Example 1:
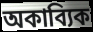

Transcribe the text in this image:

অকাব্যিক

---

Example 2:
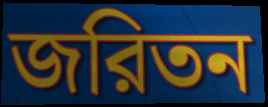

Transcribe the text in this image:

জরিতন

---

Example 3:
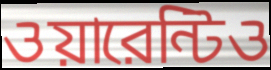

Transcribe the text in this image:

ওয়ারেন্টিও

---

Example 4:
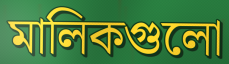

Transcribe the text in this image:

মালিকগুলো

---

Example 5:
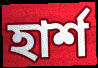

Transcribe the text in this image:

হার্শ